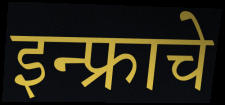
इन्फ्राचे